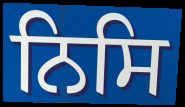
ਨਿਸਿ